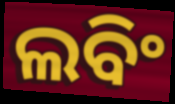
ଲବିଂ